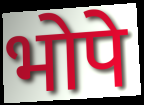
भोपे